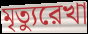
মৃত্যুরেখা